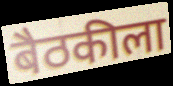
बैठकीला